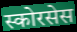
स्कोरसेस